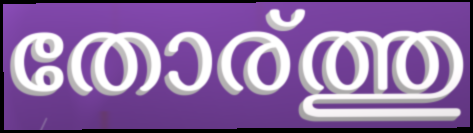
തോര്ത്തു